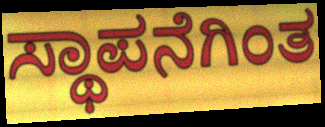
ಸ್ಥಾಪನೆಗಿಂತ